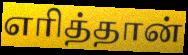
எரித்தான்